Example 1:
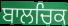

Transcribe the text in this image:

ਬਾਲਚਿਕ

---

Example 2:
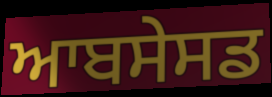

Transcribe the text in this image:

ਆਬਸੇਸਡ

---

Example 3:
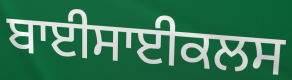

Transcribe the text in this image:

ਬਾਈਸਾਈਕਲਸ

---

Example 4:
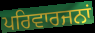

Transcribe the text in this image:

ਪਰਿਵਾਰਜਨਾਂ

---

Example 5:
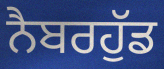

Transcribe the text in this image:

ਨੈਬਰਹੁੱਡ